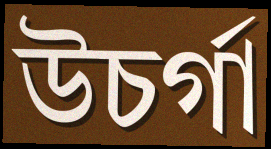
উচৰ্গা